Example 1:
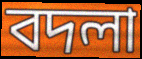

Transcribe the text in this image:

বদলা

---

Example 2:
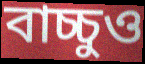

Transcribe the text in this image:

বাচ্চুও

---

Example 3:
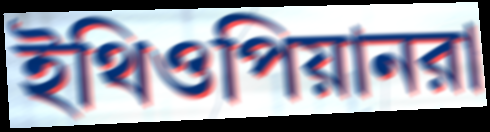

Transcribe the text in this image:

ইথিওপিয়ানরা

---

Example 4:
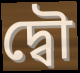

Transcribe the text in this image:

দ্বৌ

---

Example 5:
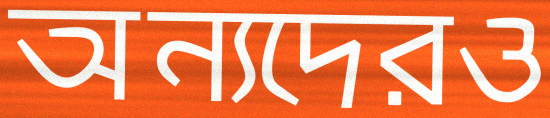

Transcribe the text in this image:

অন্যদেরও